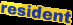
resident